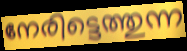
നേരിട്ടെത്തുന്ന